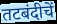
तटबंदीचें